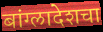
बांग्लादेशचा